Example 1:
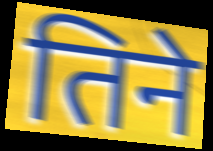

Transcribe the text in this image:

तिने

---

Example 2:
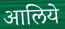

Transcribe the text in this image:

आलिये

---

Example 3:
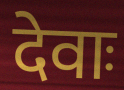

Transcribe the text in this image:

देवाः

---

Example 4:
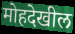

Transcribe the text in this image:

मोहदेखील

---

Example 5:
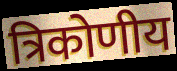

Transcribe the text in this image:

त्रिकोणीय